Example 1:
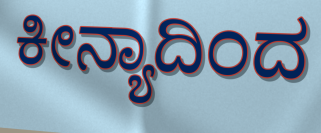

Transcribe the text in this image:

ಕೀನ್ಯಾದಿಂದ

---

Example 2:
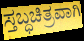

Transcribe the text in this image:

ಸ್ತಬ್ಧಚಿತ್ರವಾಗಿ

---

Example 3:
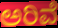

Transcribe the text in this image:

ಅರಿವೆ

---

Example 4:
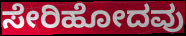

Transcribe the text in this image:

ಸೇರಿಹೋದವು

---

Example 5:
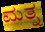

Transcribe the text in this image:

ಮತ್ನ